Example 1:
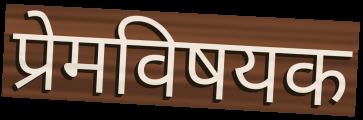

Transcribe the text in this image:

प्रेमविषयक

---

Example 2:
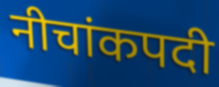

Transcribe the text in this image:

नीचांकपदी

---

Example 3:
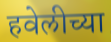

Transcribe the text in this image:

हवेलीच्या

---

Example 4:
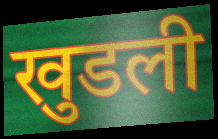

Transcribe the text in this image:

खुडली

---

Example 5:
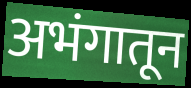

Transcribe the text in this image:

अभंगातून